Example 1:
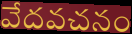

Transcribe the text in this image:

వేదవచనం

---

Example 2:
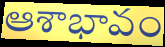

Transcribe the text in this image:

ఆశాభావం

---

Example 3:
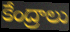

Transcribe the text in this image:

కేంద్రాలు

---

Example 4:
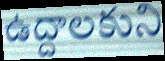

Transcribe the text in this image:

ఉద్దాలకుని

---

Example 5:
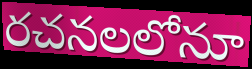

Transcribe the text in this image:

రచనలలోనూ